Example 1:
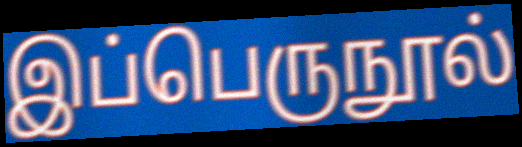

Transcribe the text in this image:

இப்பெருநூல்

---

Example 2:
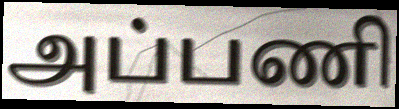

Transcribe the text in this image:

அப்பணி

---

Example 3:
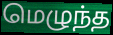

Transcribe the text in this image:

மெழுந்த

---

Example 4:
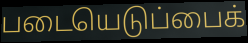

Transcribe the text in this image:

படையெடுப்பைக்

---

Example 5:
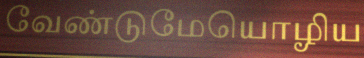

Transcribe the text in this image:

வேண்டுமேயொழிய